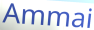
Ammai